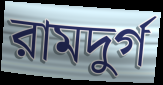
রামদুর্গ